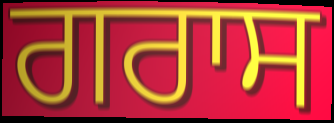
ਗਰਾਸ